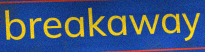
breakaway